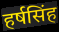
हर्षसिंह